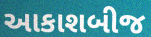
આકાશબીજ